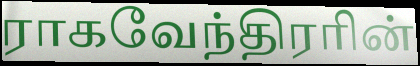
ராகவேந்திரரின்